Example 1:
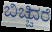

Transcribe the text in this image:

ಬಿಚ್ಚಿದರೆ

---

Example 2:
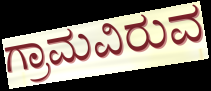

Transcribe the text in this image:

ಗ್ರಾಮವಿರುವ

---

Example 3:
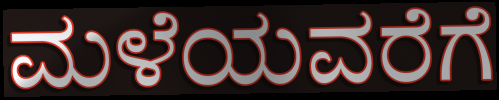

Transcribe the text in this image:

ಮಳೆಯವರೆಗೆ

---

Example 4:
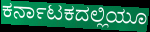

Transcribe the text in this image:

ಕರ್ನಾಟಕದಲ್ಲಿಯೂ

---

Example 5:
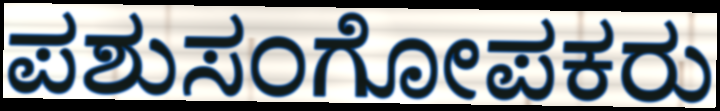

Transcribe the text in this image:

ಪಶುಸಂಗೋಪಕರು